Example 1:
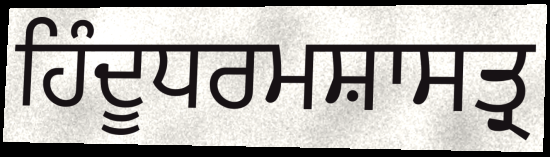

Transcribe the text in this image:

ਹਿੰਦੂਧਰਮਸ਼ਾਸਤ੍ਰ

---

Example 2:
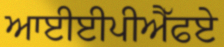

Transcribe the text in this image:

ਆਈਈਪੀਐੱਫਏ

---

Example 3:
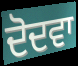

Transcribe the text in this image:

ਦੋਦਵਾ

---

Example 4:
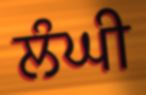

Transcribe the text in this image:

ਲੰਘੀ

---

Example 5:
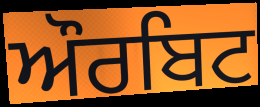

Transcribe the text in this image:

ਔਰਬਿਟ